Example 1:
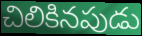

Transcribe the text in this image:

చిలికినపుడు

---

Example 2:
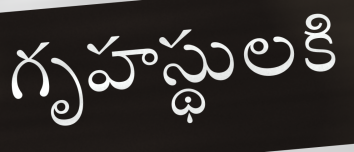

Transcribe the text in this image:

గృహస్థులకి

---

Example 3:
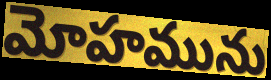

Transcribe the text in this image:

మోహమును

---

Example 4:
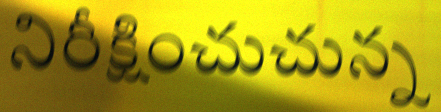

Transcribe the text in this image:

నిరీక్షించుచున్న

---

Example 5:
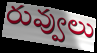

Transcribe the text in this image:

రువ్వులు